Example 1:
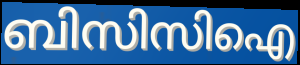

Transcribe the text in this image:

ബിസിസിഐ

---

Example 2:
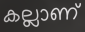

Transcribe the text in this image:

കല്ലാണ്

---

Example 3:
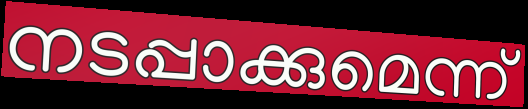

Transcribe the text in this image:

നടപ്പാക്കുമെന്ന്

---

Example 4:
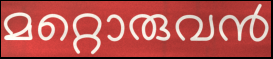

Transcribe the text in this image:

മറ്റൊരുവൻ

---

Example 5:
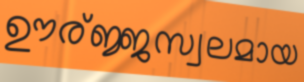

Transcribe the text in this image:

ഊര്ജ്ജസ്വലമായ